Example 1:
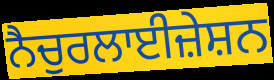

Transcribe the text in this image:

ਨੈਚੁਰਲਾਈਜ਼ੇਸ਼ਨ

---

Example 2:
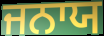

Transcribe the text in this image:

ਜਨਾਯ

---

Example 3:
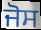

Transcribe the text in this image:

ਜੋਸ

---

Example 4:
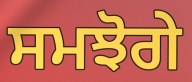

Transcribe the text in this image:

ਸਮਝੋਗੇ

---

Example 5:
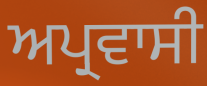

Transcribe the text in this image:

ਅਪ੍ਰਵਾਸੀ